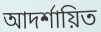
আদর্শায়িত